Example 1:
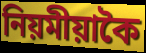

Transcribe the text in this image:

নিয়মীয়াকৈ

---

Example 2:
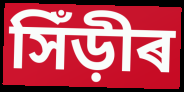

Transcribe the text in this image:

সিঁড়ীৰ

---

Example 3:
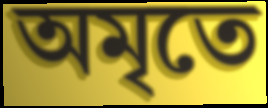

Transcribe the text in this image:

অমৃতে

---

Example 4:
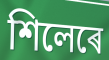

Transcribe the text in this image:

শিলেৰে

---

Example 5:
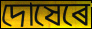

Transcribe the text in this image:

দোষেৰে